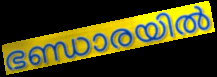
ഭണ്ഡാരയിൽ